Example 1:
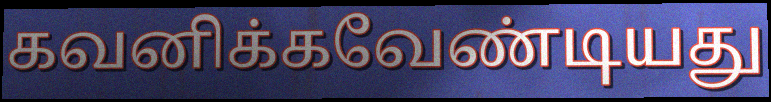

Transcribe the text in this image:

கவனிக்கவேண்டியது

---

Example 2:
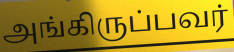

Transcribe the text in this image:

அங்கிருப்பவர்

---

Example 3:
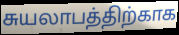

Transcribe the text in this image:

சுயலாபத்திற்காக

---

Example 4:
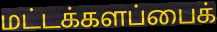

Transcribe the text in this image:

மட்டக்களப்பைக்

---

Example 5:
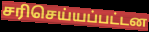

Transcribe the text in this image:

சரிசெய்யப்பட்டன